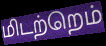
மிடற்றெம்